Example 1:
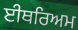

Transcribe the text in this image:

ਈਥਰਿਅਮ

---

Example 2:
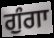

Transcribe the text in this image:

ਗੁੰਗਾ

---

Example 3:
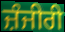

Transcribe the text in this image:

ਜ਼ੰਜੀਰੀ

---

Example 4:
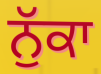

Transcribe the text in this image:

ਨੁੱਕਾ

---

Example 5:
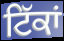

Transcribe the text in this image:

ਟਿੱਕਾਂ